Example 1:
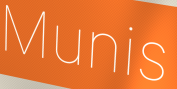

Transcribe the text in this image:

Munis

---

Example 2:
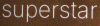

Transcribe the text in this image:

superstar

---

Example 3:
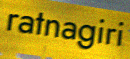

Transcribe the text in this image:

ratnagiri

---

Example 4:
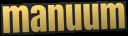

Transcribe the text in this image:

manuum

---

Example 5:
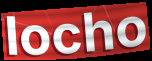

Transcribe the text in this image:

locho